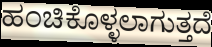
ಹಂಚಿಕೊಳ್ಳಲಾಗುತ್ತದೆ